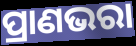
ପ୍ରାଣଭରା